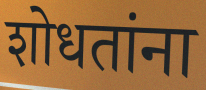
शोधतांना